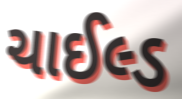
ચાઈલ્ડ